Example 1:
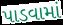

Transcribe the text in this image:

પાડવામાં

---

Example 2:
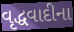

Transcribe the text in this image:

વૃદ્ધવાદીના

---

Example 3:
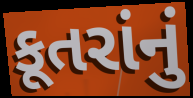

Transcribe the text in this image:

કૂતરાંનું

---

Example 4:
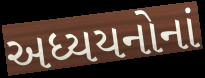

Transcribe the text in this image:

અધ્યયનોનાં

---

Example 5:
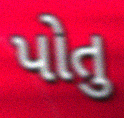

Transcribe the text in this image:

પોતુ